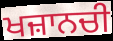
ਖਜ਼ਾਨਚੀ